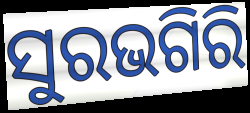
ସୁରଭଗିରି